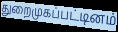
துறைமுகப்பட்டினம்